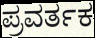
ಪ್ರವರ್ತಕ